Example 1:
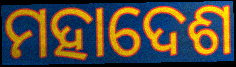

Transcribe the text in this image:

ମହାଦେଶ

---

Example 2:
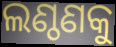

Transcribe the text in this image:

ଲଣ୍ଠଣକୁ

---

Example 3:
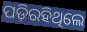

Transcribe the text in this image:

ପଡ଼ିରହିଥିଲେ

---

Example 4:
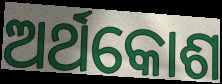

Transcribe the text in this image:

ଅର୍ଥକୋଶ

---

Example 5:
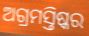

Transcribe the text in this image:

ଅଗ୍ରମସ୍ତିଷ୍କର